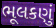
ભૂલકણું